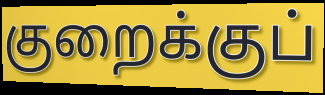
குறைக்குப்